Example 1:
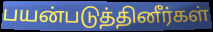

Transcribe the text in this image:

பயன்படுத்தினீர்கள்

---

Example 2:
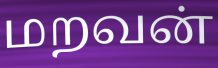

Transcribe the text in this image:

மறவன்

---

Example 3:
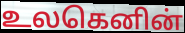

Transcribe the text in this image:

உலகெனின்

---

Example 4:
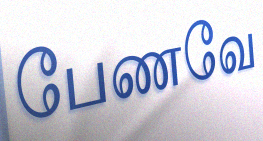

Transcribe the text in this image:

பேணவே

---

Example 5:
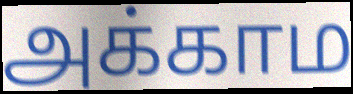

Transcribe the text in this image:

அக்காம